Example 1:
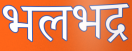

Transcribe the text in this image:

भलभद्र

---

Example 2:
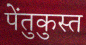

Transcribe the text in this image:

पेंतुकुस्त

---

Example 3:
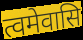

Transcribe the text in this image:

त्वमेवासि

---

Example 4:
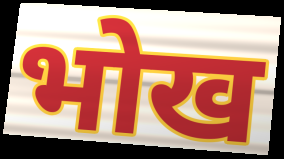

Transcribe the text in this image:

भोख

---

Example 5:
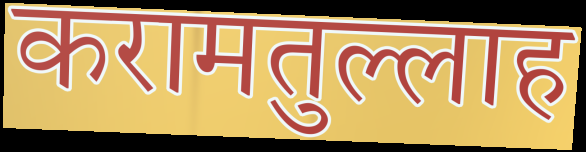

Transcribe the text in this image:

करामतुल्लाह